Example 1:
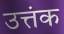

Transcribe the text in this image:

उत्तंक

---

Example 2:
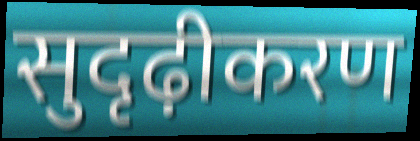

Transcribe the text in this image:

सुदृढ़ीकरण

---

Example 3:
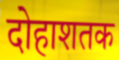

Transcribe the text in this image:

दोहाशतक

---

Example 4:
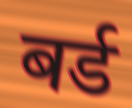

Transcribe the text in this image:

बर्ड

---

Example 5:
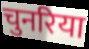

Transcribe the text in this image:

चुनरिया